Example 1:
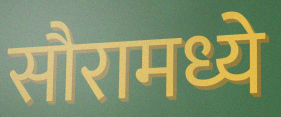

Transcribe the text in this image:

सौरामध्ये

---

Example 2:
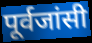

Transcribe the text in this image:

पूर्वजांसी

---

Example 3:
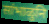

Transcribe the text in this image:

सांभाळुनि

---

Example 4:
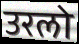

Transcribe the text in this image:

उरलो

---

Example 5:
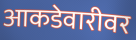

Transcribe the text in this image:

आकडेवारीवर